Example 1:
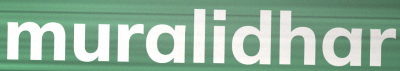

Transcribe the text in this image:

muralidhar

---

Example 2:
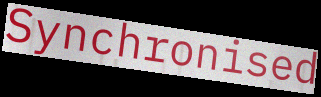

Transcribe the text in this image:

Synchronised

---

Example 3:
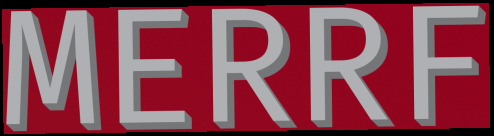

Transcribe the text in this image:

MERRF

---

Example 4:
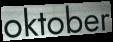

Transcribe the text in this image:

oktober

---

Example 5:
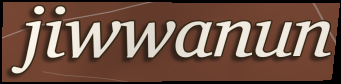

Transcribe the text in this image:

jiwwanun